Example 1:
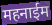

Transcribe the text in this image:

महनाईम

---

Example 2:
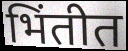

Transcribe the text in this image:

भिंतीत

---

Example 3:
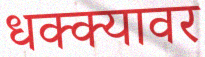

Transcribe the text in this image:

धक्क्यावर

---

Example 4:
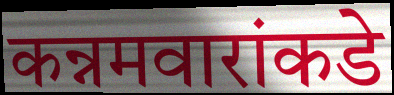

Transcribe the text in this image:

कन्नमवारांकडे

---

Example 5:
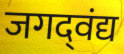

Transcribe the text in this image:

जगद्‌वंद्य